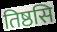
तिष्ठसि